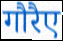
गौरैए